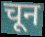
चून